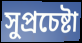
সুপ্রচেষ্টা